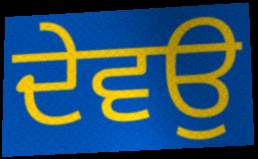
ਦੇਵਉ